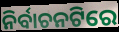
ନିର୍ବାଚନଟିରେ